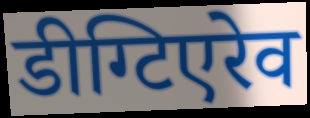
डीग्टिएरेव